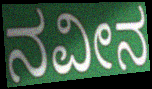
ನವೀನ